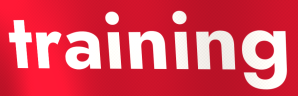
training